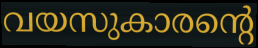
വയസുകാരന്റെ